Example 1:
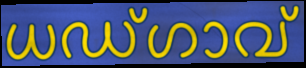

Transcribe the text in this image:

ധഡ്ഗാവ്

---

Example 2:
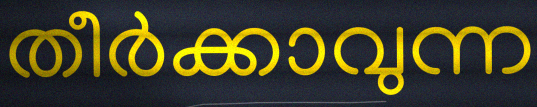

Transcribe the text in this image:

തീർക്കാവുന്ന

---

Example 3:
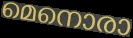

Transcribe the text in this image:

മെനൊരാ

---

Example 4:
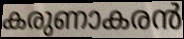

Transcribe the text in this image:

കരുണാകരൻ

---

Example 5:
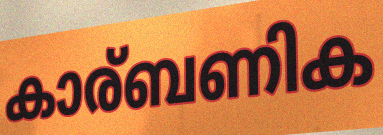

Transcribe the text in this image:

കാര്ബണിക